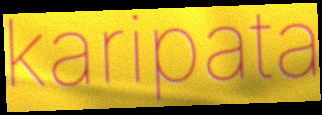
karipata